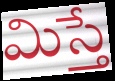
మిస్తే